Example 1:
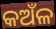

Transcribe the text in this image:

କଅଁଳ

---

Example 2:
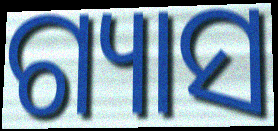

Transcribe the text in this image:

ଗ୍ୟାସ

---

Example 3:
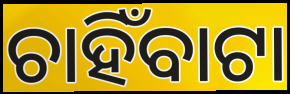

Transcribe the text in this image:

ଚାହିଁବାଟା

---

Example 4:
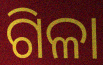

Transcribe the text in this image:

ଗିଳା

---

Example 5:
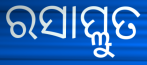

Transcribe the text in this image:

ରସାପ୍ଲୁତ